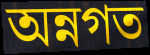
অন্নগত